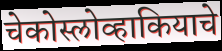
चेकोस्लोव्हाकियाचे